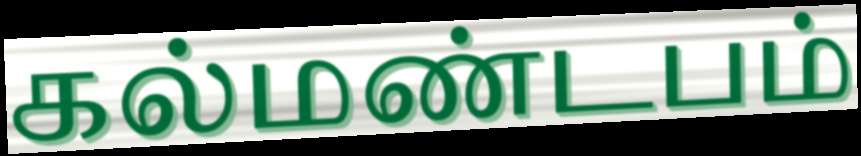
கல்மண்டபம்